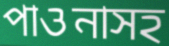
পাওনাসহ